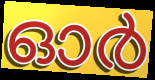
ഓർ